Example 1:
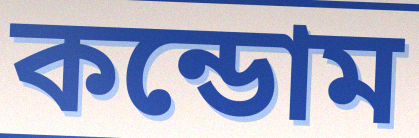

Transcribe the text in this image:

কন্ডোম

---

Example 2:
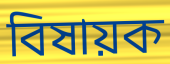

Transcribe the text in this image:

বিষায়ক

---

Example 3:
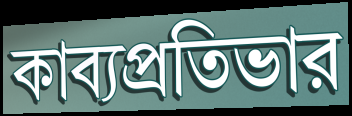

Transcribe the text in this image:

কাব্যপ্রতিভার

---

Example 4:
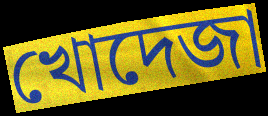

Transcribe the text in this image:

খোদেজা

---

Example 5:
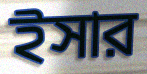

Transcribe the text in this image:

ইসার